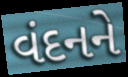
વંદનને